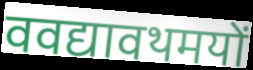
ववद्यावथमयों